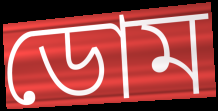
ডোম